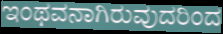
ಇಂಥವನಾಗಿರುವುದರಿಂದ